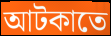
আটকাতে